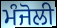
ਮੰਜੋਲੀ